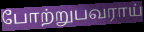
போற்றுபவராய்